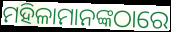
ମହିଳାମାନଙ୍କଠାରେ